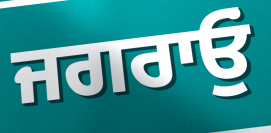
ਜਗਰਾਓੁਂ